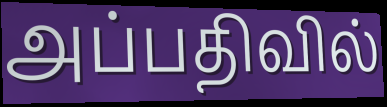
அப்பதிவில்